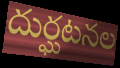
దుర్ఘటనల